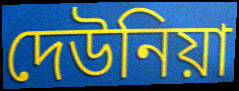
দেউনিয়া